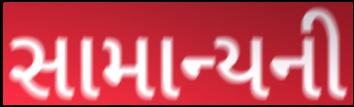
સામાન્યની